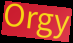
Orgy